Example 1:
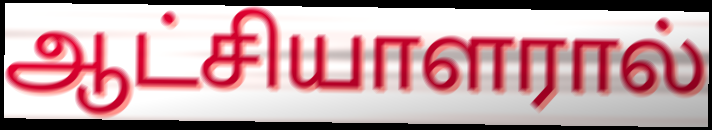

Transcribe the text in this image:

ஆட்சியாளரால்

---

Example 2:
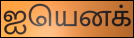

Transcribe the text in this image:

ஐயெனக்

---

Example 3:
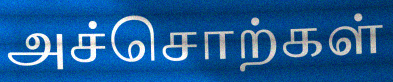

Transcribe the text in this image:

அச்சொற்கள்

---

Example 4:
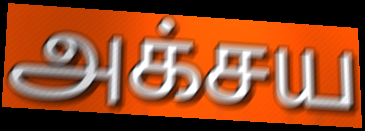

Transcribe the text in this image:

அக்சய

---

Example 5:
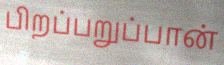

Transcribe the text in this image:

பிறப்பறுப்பான்